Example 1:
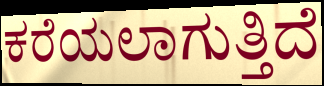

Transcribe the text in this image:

ಕರೆಯಲಾಗುತ್ತಿದೆ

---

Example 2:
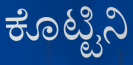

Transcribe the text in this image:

ಕೊಟ್ಟಿನಿ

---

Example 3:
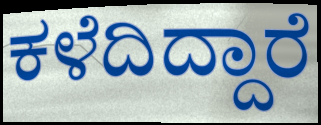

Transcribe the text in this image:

ಕಳೆದಿದ್ದಾರೆ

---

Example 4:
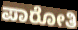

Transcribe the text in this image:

ಪಾರೋತಿ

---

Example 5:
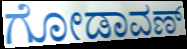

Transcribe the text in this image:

ಗೋಡಾವಣ್